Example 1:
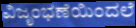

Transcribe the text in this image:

ವಿಜೃಂಭಣೆಯಿಂದಲೆ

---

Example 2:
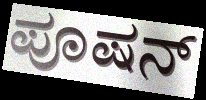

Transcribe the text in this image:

ಪೂಷನ್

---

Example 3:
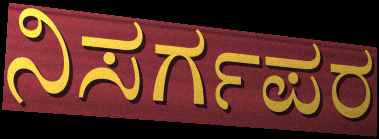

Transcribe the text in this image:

ನಿಸರ್ಗಪರ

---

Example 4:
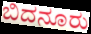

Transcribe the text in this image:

ಬಿದನೂರು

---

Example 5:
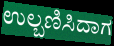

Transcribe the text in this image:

ಉಲ್ಬಣಿಸಿದಾಗ